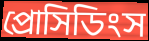
প্রোসিডিংস